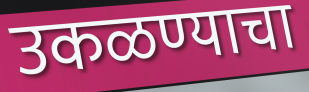
उकळण्याचा